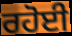
ਰਹੋਈ